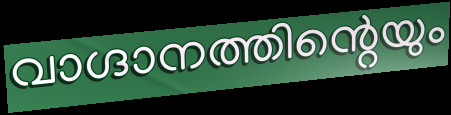
വാഗ്ദാനത്തിന്റെയും